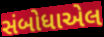
સંબોધાએલ